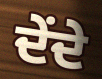
ਦੇਂਦੇ